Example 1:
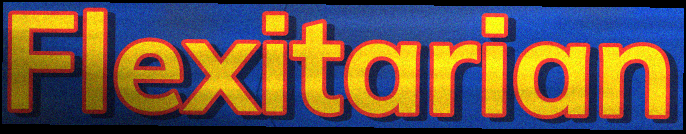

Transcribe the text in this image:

Flexitarian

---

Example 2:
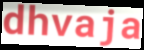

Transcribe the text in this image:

dhvaja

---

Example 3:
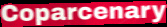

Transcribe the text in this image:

Coparcenary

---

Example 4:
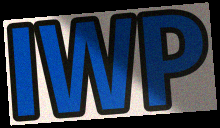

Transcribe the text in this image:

IWP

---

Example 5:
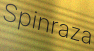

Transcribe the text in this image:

Spinraza